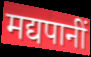
मद्यपानीं